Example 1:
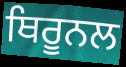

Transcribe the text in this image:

ਥਿਰੂਨਲ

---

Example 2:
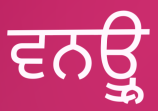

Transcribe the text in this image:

ਵਨਊ੍ਨ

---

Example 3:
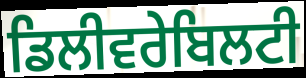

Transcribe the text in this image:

ਡਿਲੀਵਰੇਬਿਲਟੀ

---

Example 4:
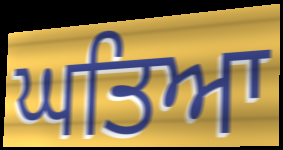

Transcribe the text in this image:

ਘਤਿਆ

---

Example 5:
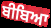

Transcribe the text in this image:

ਬੀਬਿਆ